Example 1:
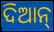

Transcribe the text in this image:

ଦିଆନ୍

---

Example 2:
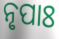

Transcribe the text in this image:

ନୃପାଃ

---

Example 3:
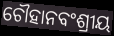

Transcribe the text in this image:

ଚୌହାନବଂଶ୍ରୀୟ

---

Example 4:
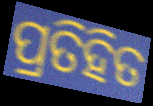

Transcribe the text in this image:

ପ୍ରତିହିତ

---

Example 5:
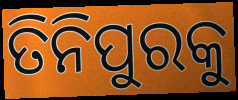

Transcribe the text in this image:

ତିନିପୁରକୁ